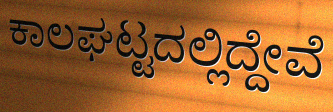
ಕಾಲಘಟ್ಟದಲ್ಲಿದ್ದೇವೆ